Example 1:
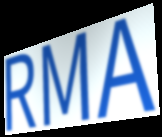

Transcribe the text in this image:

RMA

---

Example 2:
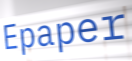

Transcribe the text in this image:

Epaper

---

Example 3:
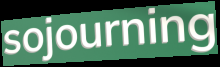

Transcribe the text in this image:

sojourning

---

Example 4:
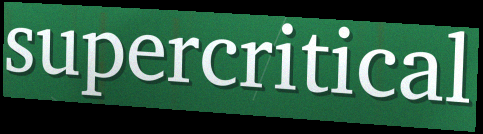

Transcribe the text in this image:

supercritical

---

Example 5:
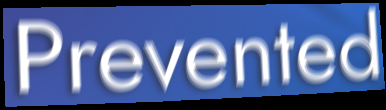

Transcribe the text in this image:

Prevented